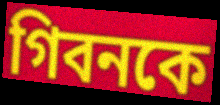
গিবনকে